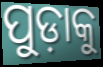
ପୁଡ଼ାକୁ